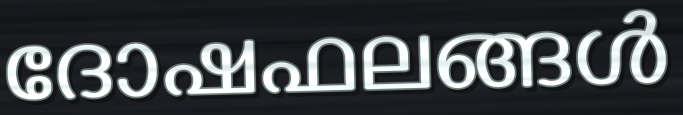
ദോഷഫലങ്ങൾ